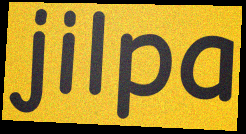
jilpa